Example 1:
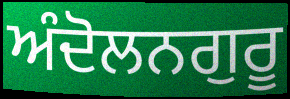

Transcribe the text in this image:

ਅੰਦੋਲਨਗੁਰੂ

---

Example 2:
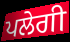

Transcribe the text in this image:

ਪਲੇਗੀ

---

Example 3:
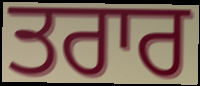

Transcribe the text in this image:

ਤਰਾਰ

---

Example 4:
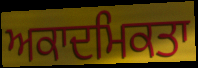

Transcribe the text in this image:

ਅਕਾਦਮਿਕਤਾ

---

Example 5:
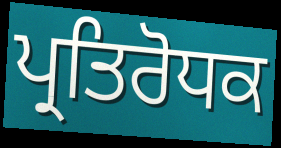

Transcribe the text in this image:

ਪ੍ਰਤਿਰੋਧਕ